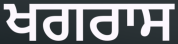
ਖਗਰਾਸ